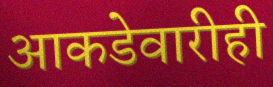
आकडेवारीही